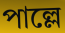
পাল্লে